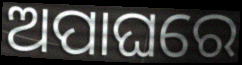
ଅପାଘରେ